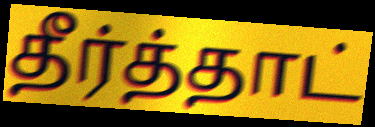
தீர்த்தாட்